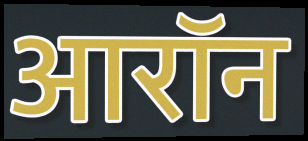
आरॉन